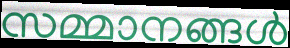
സമ്മാനങ്ങൾ